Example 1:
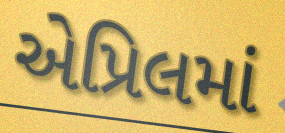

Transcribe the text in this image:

એપ્રિલમાં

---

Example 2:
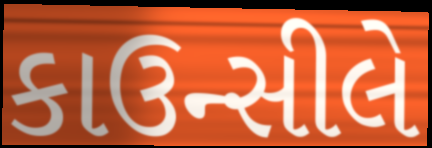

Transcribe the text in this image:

કાઉન્સીલે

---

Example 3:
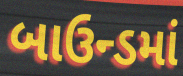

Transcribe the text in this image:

બાઉન્ડમાં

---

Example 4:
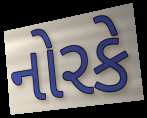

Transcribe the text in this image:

નોરકે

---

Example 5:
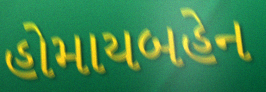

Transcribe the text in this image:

હોમાયબહેન